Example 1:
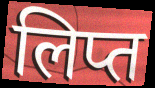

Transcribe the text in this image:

लिप्त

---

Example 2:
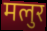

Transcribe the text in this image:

मलुर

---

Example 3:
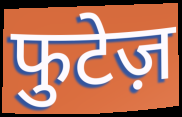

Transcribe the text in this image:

फुटेज़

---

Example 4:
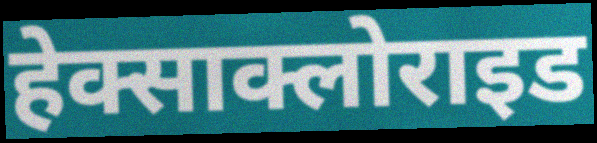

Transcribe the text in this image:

हेक्साक्लोराइड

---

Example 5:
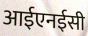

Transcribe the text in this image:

आईएनईसी